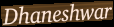
Dhaneshwar